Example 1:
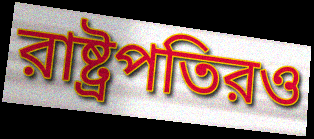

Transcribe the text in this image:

রাষ্ট্রপতিরও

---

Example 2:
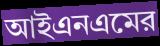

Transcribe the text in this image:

আইএনএমের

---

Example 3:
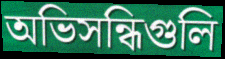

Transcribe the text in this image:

অভিসন্ধিগুলি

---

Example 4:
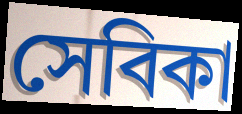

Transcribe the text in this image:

সেবিকা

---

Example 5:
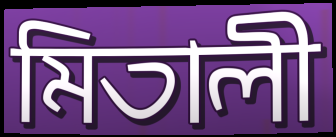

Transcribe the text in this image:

মিতালী